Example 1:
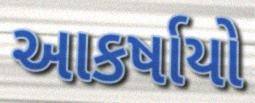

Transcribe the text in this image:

આકર્ષાયો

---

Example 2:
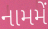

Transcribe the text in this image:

નામમેં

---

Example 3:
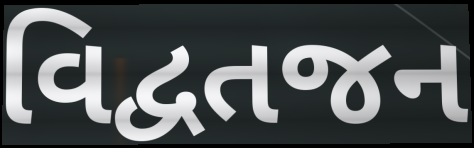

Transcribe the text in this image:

વિદ્વતજન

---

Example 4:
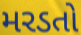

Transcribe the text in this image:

મરડતો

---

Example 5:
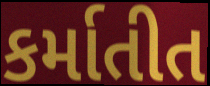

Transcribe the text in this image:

કર્માતીત